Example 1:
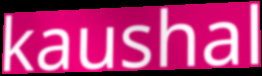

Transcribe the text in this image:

kaushal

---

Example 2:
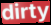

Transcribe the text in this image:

dirty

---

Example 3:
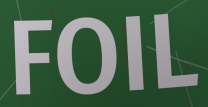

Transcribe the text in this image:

FOIL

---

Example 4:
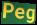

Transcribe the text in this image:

Peg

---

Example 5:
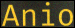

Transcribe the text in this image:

Anio